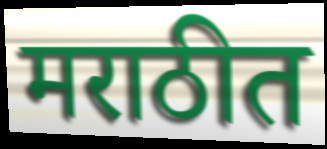
मराठीत